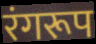
रंगरूप